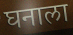
घनाला